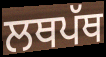
ਲਥਪੱਥ